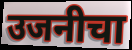
उजनीचा